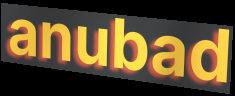
anubad